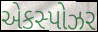
એકસ્પોઝર